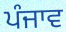
ਪੰਜਾਵ